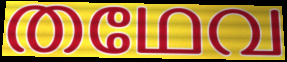
തഥേവ